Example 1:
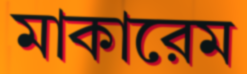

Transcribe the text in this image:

মাকারেম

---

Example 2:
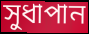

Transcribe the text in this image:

সুধাপান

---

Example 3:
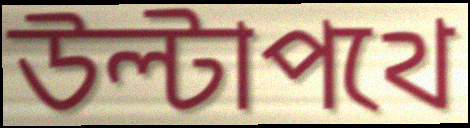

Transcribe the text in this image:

উল্টাপথে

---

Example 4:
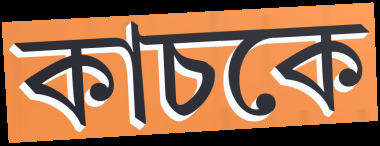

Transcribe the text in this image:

কাচকে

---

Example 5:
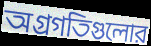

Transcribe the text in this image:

অগ্রগতিগুলোর